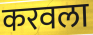
करवला